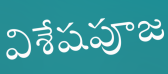
విశేషపూజ